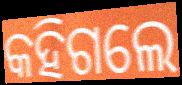
କହିଗଲେ